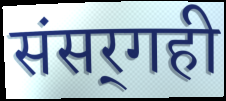
संसर्गही